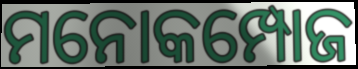
ମନୋକମ୍ପୋଜ